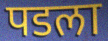
पडला